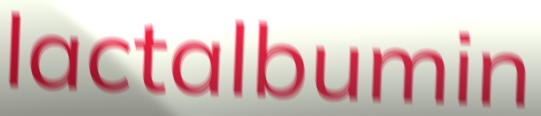
lactalbumin